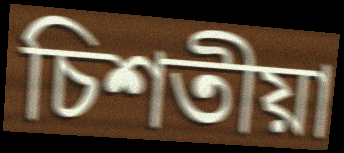
চিশতীয়া